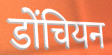
डोंचियन